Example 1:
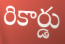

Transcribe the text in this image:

రికార్డు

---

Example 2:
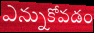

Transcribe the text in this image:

ఎన్నుకోవడం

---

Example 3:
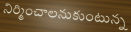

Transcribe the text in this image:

నిర్మించాలనుకుంటున్న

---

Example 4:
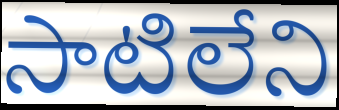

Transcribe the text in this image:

సాటిలేని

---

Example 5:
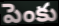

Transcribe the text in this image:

పెంకు